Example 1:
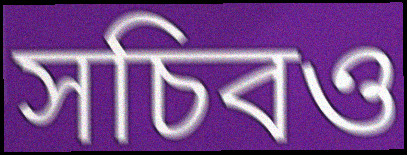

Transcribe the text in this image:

সচিবও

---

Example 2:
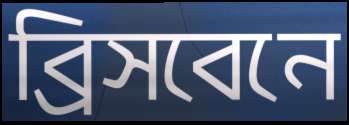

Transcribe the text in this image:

ব্রিসবেনে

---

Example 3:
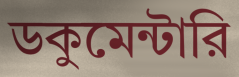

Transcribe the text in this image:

ডকুমেন্টারি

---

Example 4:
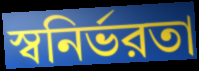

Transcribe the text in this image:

স্বনির্ভরতা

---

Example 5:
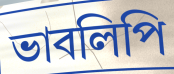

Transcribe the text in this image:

ভাবলিপি